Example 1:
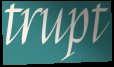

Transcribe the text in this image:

trupt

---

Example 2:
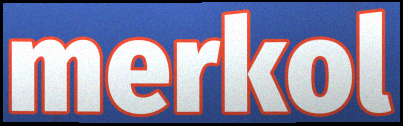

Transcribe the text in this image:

merkol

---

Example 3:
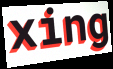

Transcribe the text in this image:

xing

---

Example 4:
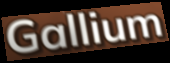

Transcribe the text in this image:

Gallium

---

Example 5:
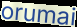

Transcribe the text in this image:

orumai